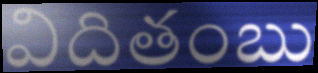
విదితంబు